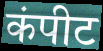
कंपीट